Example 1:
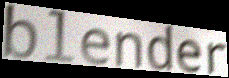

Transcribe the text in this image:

blender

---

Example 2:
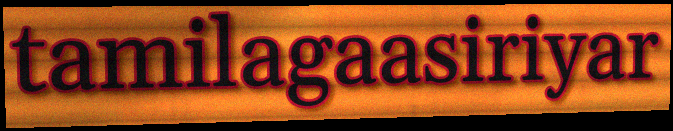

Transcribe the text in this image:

tamilagaasiriyar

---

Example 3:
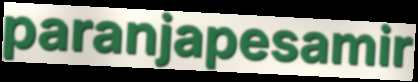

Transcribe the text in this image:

paranjapesamir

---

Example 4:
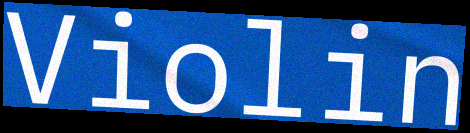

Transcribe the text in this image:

Violin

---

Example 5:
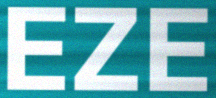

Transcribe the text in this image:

EZE